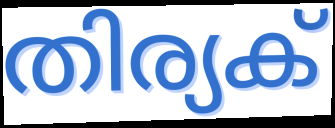
തിര്യക്